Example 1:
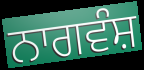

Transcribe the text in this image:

ਨਾਗਵੰਸ਼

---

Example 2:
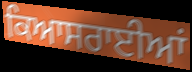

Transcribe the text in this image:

ਕਿਆਸਰਾਈਆਂ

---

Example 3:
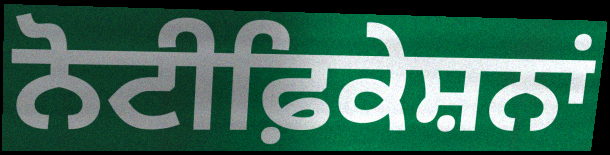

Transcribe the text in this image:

ਨੋਟੀਫ਼ਿਕੇਸ਼ਨਾਂ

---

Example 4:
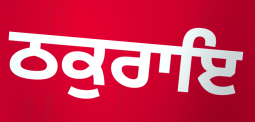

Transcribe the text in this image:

ਠਕੁਰਾਇ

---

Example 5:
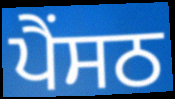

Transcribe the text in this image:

ਪੈਂਸਠ